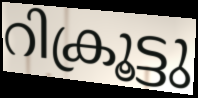
റിക്രൂട്ടു